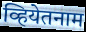
व्हियेतनाम